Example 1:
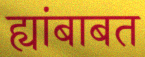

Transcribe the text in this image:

ह्यांबाबत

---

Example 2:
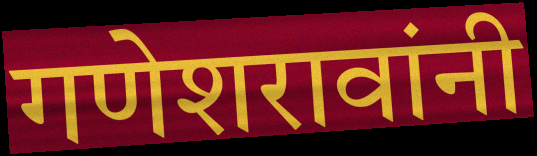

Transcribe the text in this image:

गणेशरावांनी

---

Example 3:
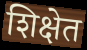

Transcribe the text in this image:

शिक्षेत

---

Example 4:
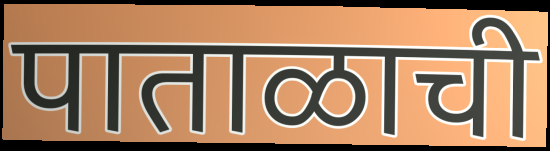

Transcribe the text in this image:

पाताळाची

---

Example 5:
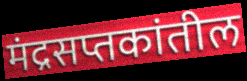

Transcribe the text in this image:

मंद्रसप्तकांतील